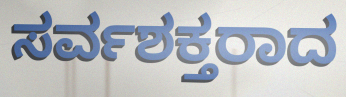
ಸರ್ವಶಕ್ತರಾದ